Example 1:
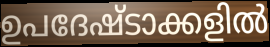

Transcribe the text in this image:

ഉപദേഷ്ടാക്കളിൽ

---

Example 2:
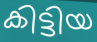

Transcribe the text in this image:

കിട്ടിയ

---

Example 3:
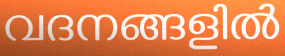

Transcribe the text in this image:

വദനങ്ങളിൽ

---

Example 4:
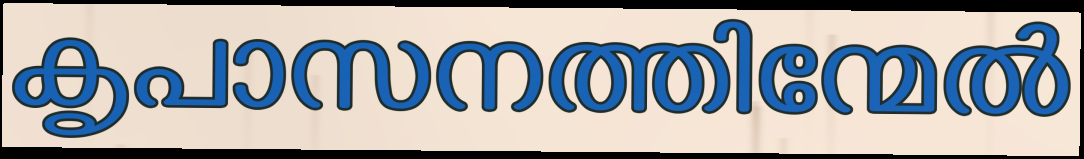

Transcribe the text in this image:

കൃപാസനത്തിന്മേൽ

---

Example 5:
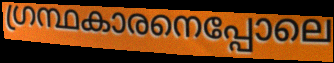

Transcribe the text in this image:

ഗ്രന്ഥകാരനെപ്പോലെ